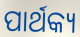
ପାର୍ଥକ୍ୟ